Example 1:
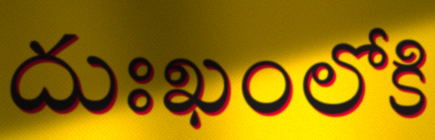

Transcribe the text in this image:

దుఃఖంలోకి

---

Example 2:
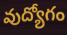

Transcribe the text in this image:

వుద్యోగం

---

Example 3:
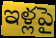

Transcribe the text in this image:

ఇళ్లపై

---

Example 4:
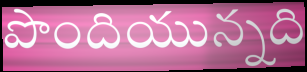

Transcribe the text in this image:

పొందియున్నది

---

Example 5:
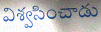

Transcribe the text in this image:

విశ్వసించాడు